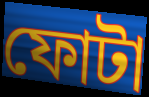
ফোটা